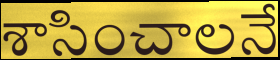
శాసించాలనే